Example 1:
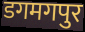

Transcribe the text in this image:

डगमगपुर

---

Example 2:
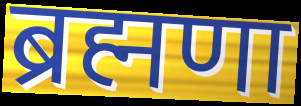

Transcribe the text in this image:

ब्रह्मणा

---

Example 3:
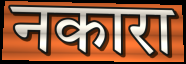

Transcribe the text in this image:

नकारा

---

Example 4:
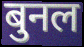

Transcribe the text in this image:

बुनल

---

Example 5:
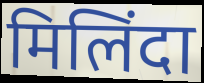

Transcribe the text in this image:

मिलिंदा